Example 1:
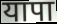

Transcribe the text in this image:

यापा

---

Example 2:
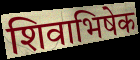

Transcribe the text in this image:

शिवाभिषेक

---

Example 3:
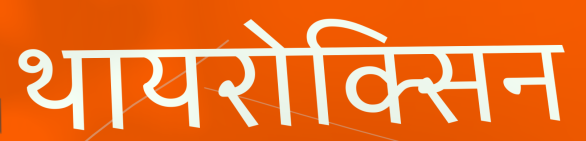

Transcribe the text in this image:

थायरोक्सिन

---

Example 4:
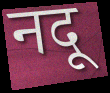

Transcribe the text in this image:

नदू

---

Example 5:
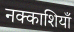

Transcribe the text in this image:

नक्काशियाँ